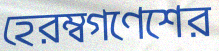
হেরম্বগণেশের